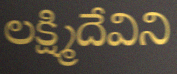
లక్ష్మిదేవిని